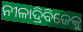
ନୀଳାଦ୍ରିବିଜେକୁ